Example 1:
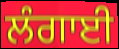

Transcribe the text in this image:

ਲੰਗਾਈ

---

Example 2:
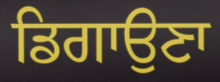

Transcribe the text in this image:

ਡਿਗਾਉਣਾ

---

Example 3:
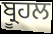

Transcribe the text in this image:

ਬ੍ਰੂਹਲ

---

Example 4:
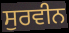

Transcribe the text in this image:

ਸੁਰਵੀਨ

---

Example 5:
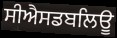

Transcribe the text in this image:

ਸੀਐਸਡਬਲਿਊ